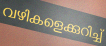
വഴികളെക്കുറിച്ച്